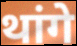
थांगे